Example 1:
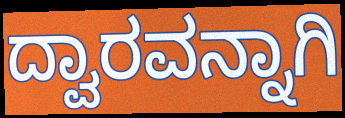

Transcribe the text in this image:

ದ್ವಾರವನ್ನಾಗಿ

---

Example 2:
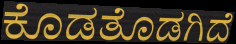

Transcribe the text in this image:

ಕೊಡತೊಡಗಿದೆ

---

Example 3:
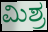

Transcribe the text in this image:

ಮಿಶ್ರ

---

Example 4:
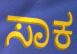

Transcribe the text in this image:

ಸಾಕ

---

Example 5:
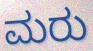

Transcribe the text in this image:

ಮರು